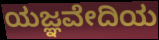
ಯಜ್ಞವೇದಿಯ